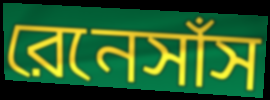
রেনেসাঁস